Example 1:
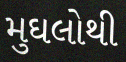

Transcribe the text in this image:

મુઘલોથી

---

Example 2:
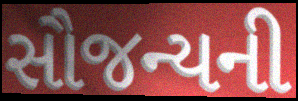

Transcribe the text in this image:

સૌજન્યની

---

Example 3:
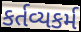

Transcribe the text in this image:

કર્તવ્યકર્મ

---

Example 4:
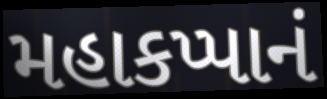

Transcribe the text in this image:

મહાકપ્પાનં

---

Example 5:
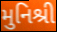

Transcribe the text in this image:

મુનિશ્રી